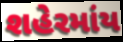
શહેરમાંય